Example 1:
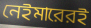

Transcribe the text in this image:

নেইমারেরই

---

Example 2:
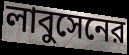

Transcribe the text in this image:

লাবুসেনের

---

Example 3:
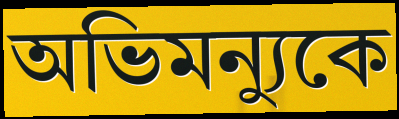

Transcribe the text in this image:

অভিমন্যুকে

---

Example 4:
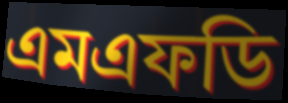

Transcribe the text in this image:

এমএফডি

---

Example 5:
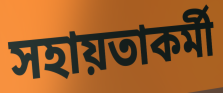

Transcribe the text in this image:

সহায়তাকর্মী